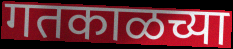
गतकाळच्या